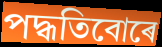
পদ্ধতিবোৰে